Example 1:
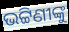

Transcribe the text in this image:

ଭଟ୍ଟିଣୀଙ୍କୁ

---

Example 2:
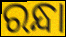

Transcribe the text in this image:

ରନ୍ଧା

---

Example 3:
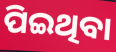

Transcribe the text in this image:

ପିଇଥିବା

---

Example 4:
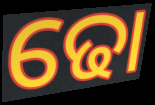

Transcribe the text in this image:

ଢୋ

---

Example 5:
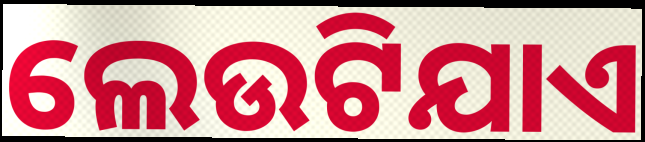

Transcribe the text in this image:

ଲେଉଟିଯାଏ